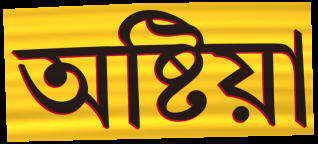
অষ্টিয়া